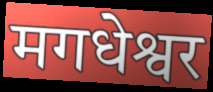
मगधेश्वर